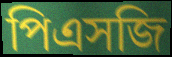
পিএসজি